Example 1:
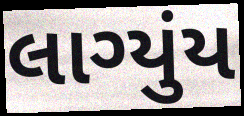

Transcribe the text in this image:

લાગ્યુંય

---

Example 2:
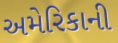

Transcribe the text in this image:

અમેરિકાની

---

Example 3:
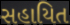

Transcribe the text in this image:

સહાયિત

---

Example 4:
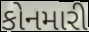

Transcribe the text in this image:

કોનમારી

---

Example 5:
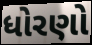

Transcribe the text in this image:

ધોરણો